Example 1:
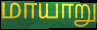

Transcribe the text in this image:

மாயாறு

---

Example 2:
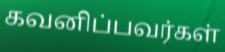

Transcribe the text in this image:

கவனிப்பவர்கள்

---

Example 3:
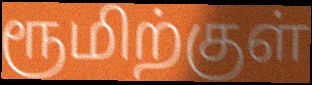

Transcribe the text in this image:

ரூமிற்குள்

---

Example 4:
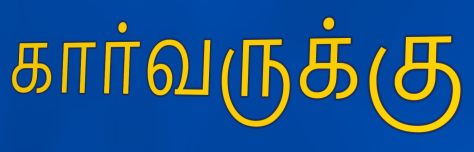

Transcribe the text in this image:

கார்வருக்கு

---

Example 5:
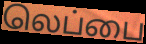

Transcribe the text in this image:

லெப்பை